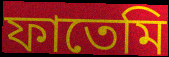
ফাতেমি